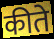
कीते